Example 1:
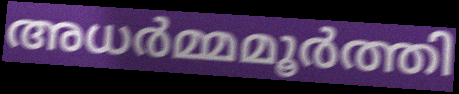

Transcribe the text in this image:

അധർമ്മമൂർത്തി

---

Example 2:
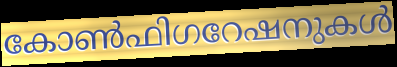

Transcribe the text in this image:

കോൺഫിഗറേഷനുകൾ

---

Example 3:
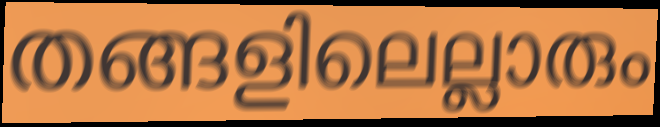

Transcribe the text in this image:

തങ്ങളിലെല്ലാരും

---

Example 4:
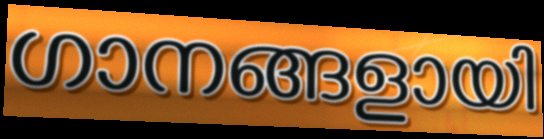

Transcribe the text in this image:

ഗാനങ്ങളായി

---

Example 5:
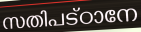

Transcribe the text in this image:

സതിപട്ഠാനേ